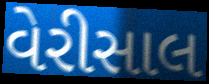
વેરીસાલ